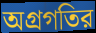
অগ্রগতির